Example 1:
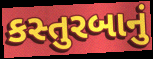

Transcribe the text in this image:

કસ્તુરબાનું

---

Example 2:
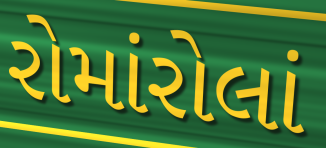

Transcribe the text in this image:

રોમાંરોલાં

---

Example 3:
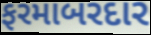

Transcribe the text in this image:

ફરમાબરદાર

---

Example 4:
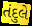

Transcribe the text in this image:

તંદુલે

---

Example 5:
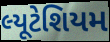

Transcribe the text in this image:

લ્યૂટેશિયમ